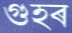
গুহৰ